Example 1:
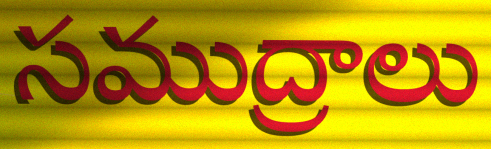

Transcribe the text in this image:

సముద్రాలు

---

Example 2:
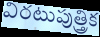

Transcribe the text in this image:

విరటుపుత్త్రిక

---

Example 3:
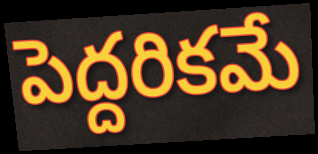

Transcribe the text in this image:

పెద్దరికమే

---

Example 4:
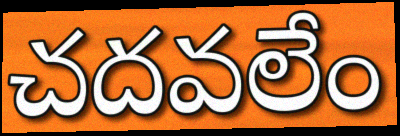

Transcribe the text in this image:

చదవలేం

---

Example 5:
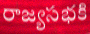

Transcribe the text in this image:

రాజ్యసభకి